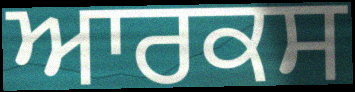
ਆਰਕਸ